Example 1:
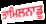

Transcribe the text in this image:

ਤਾਮਿਲਨਾਡੂ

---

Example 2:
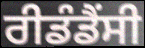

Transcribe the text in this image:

ਰੀਡੰਡੈਂਸੀ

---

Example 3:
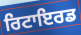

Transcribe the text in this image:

ਰਿਟਾਇਰਡ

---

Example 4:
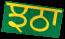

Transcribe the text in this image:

ਝਠਾ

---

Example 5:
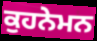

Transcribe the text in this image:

ਕੁਹਨੇਮਨ